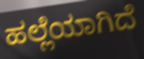
ಹಲ್ಲೆಯಾಗಿದೆ